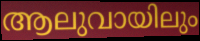
ആലുവായിലും